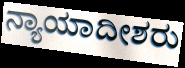
ನ್ಯಾಯಾದೀಶರು